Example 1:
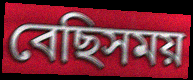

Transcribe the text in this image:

বেছিসময়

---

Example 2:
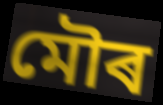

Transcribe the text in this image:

মৌৰ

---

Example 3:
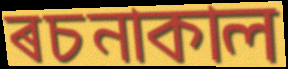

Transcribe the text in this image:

ৰচনাকাল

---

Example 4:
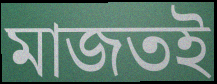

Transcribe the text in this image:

মাজতই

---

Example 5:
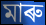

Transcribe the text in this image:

মাৰু